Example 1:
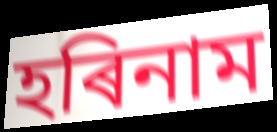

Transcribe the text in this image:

হৰিনাম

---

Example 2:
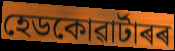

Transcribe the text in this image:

হেডকোৱাৰ্টাৰৰ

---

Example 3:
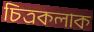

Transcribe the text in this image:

চিত্ৰকলাক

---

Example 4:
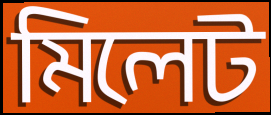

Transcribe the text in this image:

মিলেট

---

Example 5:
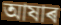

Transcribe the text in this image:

আষাৰ